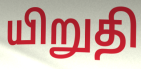
யிறுதி